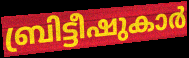
ബ്രിട്ടീഷുകാർ